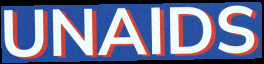
UNAIDS